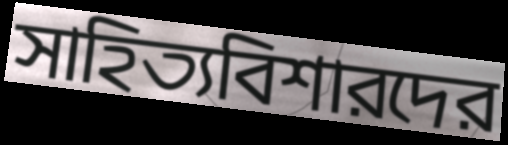
সাহিত্যবিশারদের